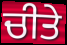
ਚੀਤੇ